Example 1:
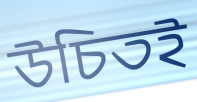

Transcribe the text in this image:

উচিতই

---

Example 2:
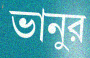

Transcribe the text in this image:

ভানুর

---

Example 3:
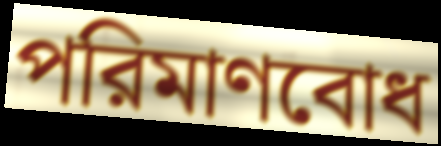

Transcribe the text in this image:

পরিমাণবোধ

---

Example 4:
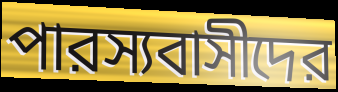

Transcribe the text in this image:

পারস্যবাসীদের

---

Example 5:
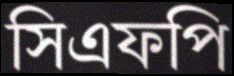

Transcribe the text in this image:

সিএফপি